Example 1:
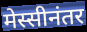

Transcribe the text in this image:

मेस्सीनंतर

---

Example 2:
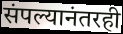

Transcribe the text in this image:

संपल्यानंतरही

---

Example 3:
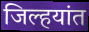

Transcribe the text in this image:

जिल्हयांत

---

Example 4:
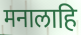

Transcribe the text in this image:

मनालाहि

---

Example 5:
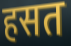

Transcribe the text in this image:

हसत